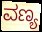
ವಣ್ಯ